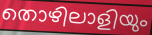
തൊഴിലാളിയും